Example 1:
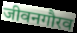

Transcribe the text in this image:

जीवनगौरव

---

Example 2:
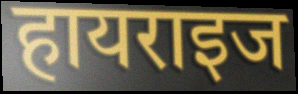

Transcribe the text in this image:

हायराइज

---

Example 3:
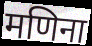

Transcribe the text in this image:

मणिना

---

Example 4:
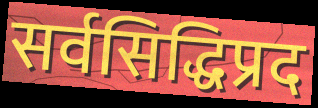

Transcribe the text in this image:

सर्वसिद्धिप्रद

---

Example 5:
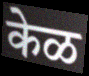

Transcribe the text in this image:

केळ